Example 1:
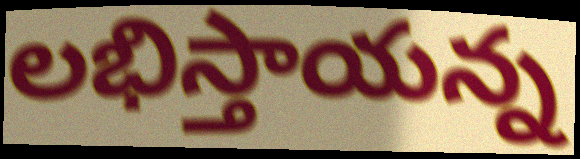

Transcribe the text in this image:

లభిస్తాయన్న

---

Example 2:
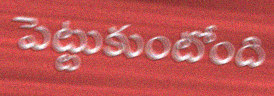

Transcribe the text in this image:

పెట్టుకుంటోంది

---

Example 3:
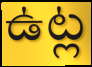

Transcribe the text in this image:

ఉట్ల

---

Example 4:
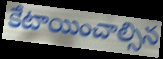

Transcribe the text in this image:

కేటాయించాల్సిన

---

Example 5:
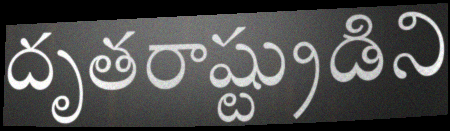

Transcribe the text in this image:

దృతరాష్ట్రుడిని